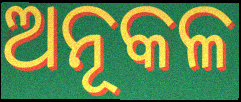
ଅନୂକଳ